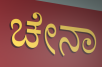
ಚೇನಾ